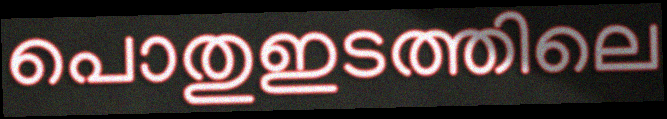
പൊതുഇടത്തിലെ